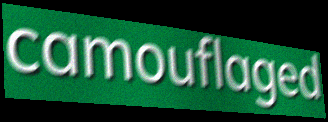
camouflaged